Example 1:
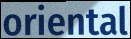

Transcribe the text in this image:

oriental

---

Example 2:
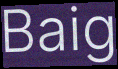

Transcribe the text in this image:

Baig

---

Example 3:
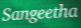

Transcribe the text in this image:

Sangeetha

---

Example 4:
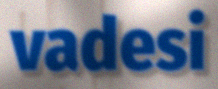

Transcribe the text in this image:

vadesi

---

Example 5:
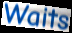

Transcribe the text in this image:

Waits